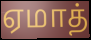
ஏமாத்